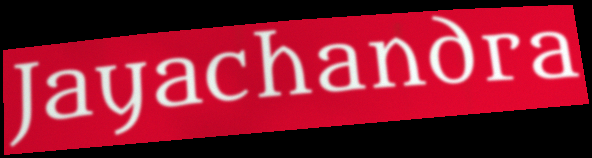
Jayachandra